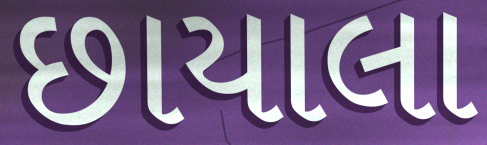
છાયાલા